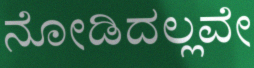
ನೋಡಿದಲ್ಲವೇ